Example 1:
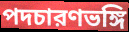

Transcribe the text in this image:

পদচারণভঙ্গি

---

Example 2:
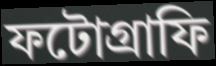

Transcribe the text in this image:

ফটোগ্রাফি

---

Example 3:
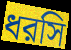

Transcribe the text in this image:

ধরসি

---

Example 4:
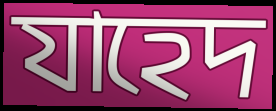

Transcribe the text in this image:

যাহেদ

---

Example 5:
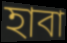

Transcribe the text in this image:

হাবা